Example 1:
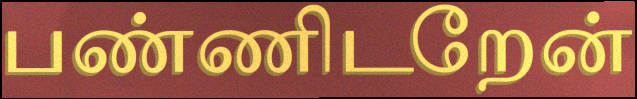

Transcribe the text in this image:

பண்ணிடறேன்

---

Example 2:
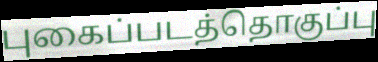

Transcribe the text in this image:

புகைப்படத்தொகுப்பு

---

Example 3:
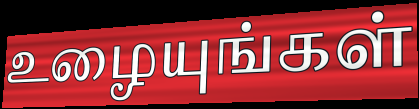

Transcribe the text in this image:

உழையுங்கள்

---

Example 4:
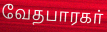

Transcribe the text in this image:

வேதபாரகர்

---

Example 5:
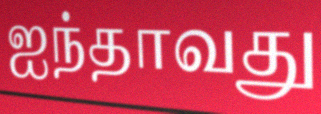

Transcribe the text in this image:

ஐந்தாவது